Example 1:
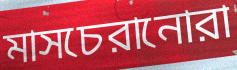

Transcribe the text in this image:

মাসচেরানোরা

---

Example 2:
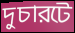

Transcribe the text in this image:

দুচারটে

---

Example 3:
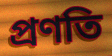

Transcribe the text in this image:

প্রণতি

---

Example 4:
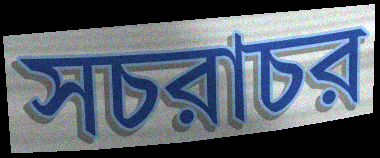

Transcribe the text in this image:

সচরাচর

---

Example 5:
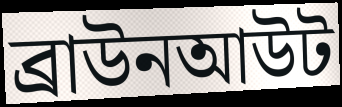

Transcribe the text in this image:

ব্রাউনআউট